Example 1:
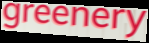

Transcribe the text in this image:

greenery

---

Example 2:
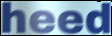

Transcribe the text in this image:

heed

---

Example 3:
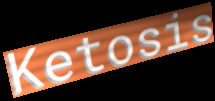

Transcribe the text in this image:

Ketosis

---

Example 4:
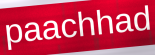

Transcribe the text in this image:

paachhad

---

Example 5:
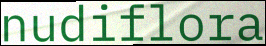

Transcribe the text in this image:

nudiflora